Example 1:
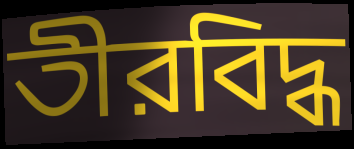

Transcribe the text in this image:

তীরবিদ্ধ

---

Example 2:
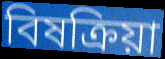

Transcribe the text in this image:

বিষক্রিয়া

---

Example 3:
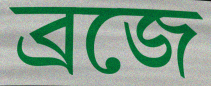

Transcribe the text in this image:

ব্রজে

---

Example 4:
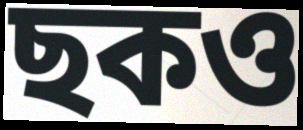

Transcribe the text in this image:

ছকও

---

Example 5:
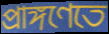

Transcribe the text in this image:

প্রাঙ্গণেতে